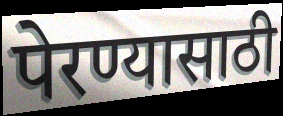
पेरण्यासाठी